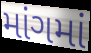
માંગમાં